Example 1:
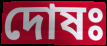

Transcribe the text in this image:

দোষঃ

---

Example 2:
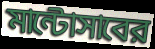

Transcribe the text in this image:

মান্টোসাবের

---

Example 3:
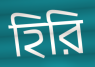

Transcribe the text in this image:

হিরি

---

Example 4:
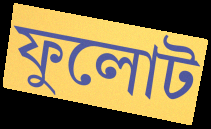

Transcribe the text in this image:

ফুলোট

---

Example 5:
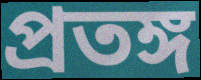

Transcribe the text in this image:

প্রতঙ্গ